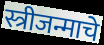
स्त्रीजन्माचे